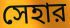
সেহার